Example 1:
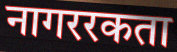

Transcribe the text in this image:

नागररकता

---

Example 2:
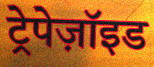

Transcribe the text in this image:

ट्रेपेज़ॉइड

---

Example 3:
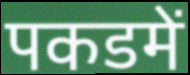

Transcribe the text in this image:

पकडमें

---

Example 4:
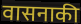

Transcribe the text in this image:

वासनाकी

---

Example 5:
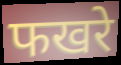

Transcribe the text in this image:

फखरे